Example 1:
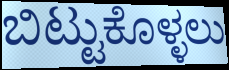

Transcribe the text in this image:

ಬಿಟ್ಟುಕೊಳ್ಳಲು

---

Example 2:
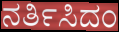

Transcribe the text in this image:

ನರ್ತಿಸಿದಂ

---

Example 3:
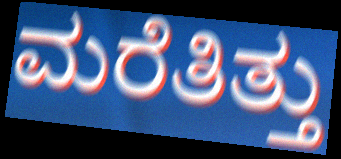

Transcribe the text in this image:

ಮರೆತಿತ್ತು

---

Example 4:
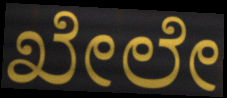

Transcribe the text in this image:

ಖೇಲೇ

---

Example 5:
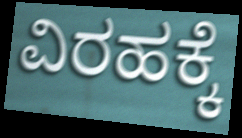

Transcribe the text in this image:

ವಿರಹಕ್ಕೆ